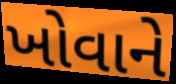
ખોવાને